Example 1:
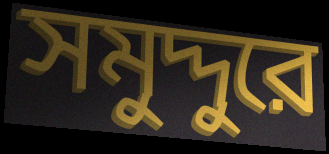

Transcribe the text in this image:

সমুদ্দুরে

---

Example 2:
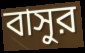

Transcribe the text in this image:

বাসুর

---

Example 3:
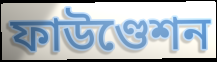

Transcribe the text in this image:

ফাউণ্ডেশন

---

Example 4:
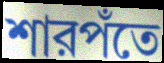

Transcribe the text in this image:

শারপঁতে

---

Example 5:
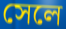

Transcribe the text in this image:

সেলে